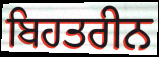
ਬਿਹਤਰੀਨ